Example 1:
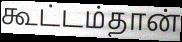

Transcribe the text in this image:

கூட்டம்தான்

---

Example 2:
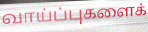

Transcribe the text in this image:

வாய்ப்புகளைக்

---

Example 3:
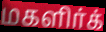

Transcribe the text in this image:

மகளிர்க்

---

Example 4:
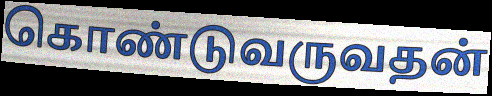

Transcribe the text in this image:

கொண்டுவருவதன்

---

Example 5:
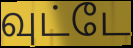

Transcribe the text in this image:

வுட்டே